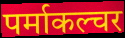
पर्माकल्चर